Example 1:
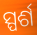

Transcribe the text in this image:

ସ୍ପର୍ଶ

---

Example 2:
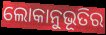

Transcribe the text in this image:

ଲୋକାନୁଭୂତିର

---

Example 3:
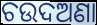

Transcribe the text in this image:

ଚଉଦଅଣା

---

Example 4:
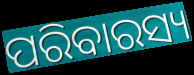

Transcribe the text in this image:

ପରିବାରସ୍ୟ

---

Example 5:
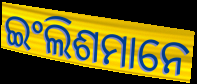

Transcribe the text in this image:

ଇଂଲିଶମାନେ